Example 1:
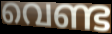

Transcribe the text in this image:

വെണ്ട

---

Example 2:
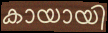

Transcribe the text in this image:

കായായി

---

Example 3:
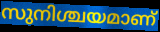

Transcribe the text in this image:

സുനിശ്ചയമാണ്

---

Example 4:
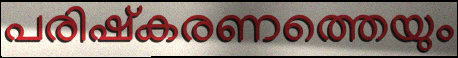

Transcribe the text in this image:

പരിഷ്കരണത്തെയും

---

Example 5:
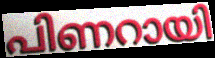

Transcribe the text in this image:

പിണറായി